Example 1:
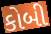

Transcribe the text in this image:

કોબી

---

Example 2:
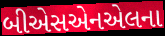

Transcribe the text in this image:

બીએસએનએલના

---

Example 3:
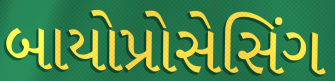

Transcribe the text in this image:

બાયોપ્રોસેસિંગ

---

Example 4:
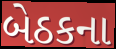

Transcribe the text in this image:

બેઠકના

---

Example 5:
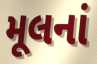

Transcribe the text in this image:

મૂલનાં